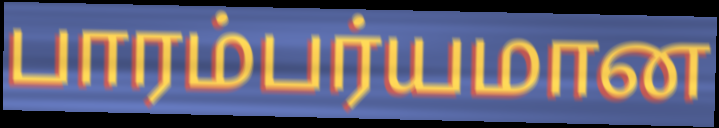
பாரம்பர்யமான